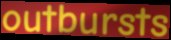
outbursts